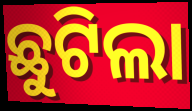
ଛୁଟିଲା